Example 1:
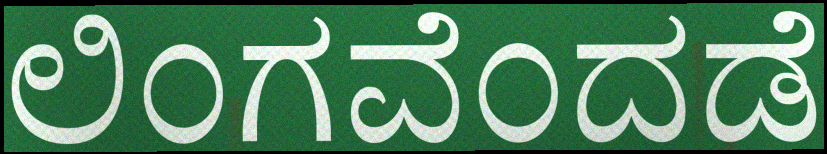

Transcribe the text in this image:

ಲಿಂಗವೆಂದಡೆ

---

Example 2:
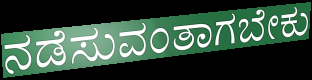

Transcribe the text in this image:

ನಡೆಸುವಂತಾಗಬೇಕು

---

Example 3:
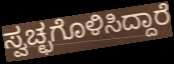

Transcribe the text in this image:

ಸ್ವಚ್ಛಗೊಳಿಸಿದ್ದಾರೆ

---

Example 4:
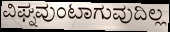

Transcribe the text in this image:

ವಿಘ್ನವುಂಟಾಗುವುದಿಲ್ಲ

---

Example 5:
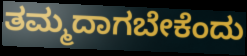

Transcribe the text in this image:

ತಮ್ಮದಾಗಬೇಕೆಂದು